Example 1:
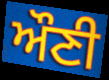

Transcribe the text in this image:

ਔਣੀ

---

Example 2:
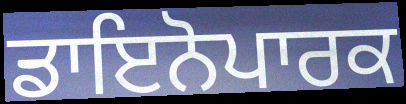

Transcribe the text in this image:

ਡਾਇਨੋਪਾਰਕ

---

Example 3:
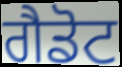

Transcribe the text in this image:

ਗੈਡੋਟ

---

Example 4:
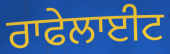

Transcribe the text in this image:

ਰਾਫੇਲਾਈਟ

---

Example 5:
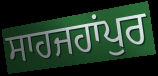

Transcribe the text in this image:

ਸਾਹਜਹਾਂਪੁਰ